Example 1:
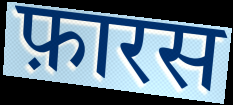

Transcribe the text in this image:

फ़ारस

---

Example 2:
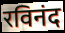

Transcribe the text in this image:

रविनंद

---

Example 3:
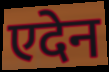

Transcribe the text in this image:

एदेन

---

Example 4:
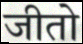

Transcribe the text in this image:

जीतो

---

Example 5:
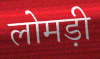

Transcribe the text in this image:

लोमड़ी